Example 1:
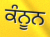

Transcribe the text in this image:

ਕੰਨੂਨ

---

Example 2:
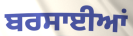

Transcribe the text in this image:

ਬਰਸਾਈਆਂ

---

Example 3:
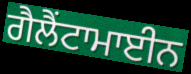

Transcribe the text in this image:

ਗੈਲੈਂਟਾਮਾਈਨ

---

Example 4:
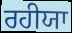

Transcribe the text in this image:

ਰਹੀਯਾ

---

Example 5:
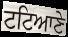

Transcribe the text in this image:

ਟਟਿਆਣੇ